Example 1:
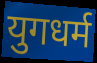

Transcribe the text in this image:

युगधर्म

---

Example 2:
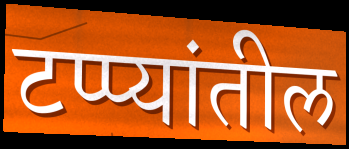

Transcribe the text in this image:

टप्प्यांतील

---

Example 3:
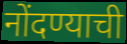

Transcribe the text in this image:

नोंदण्याची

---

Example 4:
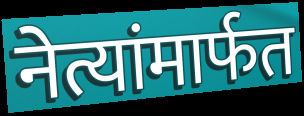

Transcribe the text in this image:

नेत्यांमार्फत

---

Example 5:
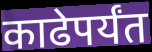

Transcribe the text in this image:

काढेपर्यंत